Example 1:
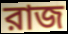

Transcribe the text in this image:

রাজ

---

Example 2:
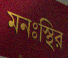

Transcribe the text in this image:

মনঃস্থির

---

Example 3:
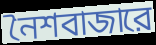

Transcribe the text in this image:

নৈশবাজারে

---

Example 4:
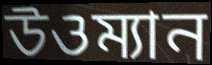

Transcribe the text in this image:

উওম্যান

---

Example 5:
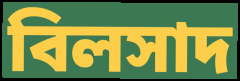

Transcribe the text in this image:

বিলসাদ